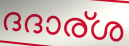
ദദാര്ശ